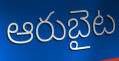
ఆరుబైట